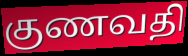
குணவதி